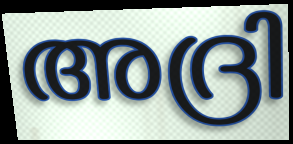
അദ്രി